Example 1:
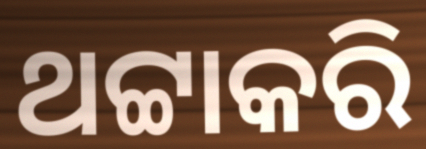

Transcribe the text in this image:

ଥଟ୍ଟାକରି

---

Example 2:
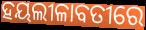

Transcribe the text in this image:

ହୟଲୀଳାବତୀରେ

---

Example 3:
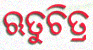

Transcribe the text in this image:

ଋତୁଚିତ୍ର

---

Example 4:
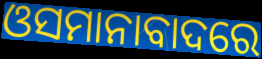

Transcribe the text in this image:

ଓସମାନାବାଦରେ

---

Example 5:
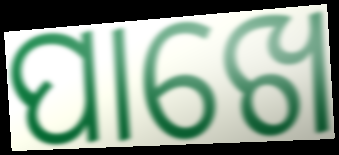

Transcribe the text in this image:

ପାଖେ